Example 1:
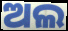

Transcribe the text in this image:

ଅଲ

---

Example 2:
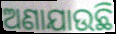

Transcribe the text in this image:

ଅଣାଯାଉଛି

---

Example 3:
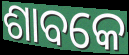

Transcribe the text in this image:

ଶାବକେ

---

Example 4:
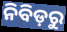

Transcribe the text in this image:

ନିବିଡ଼ରୁ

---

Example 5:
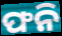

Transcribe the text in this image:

ଫନି